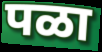
पळा